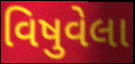
વિષુવેલા